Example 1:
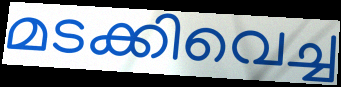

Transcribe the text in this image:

മടക്കിവെച്ച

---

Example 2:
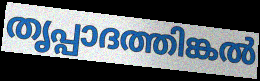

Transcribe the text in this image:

തൃപ്പാദത്തിങ്കൽ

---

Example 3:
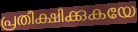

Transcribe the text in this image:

പ്രതീക്ഷിക്കുകയേ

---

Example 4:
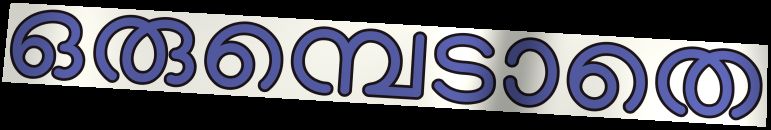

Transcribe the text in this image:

ഒരുമ്പെടാതെ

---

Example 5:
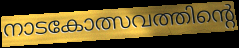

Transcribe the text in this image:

നാടകോത്സവത്തിന്റെ